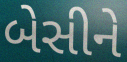
બેસીને